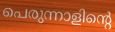
പെരുന്നാളിന്റെ